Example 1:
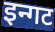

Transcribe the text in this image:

इन्गट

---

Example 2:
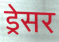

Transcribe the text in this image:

ड्रेसर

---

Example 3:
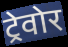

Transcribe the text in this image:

ट्रेवोर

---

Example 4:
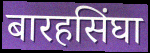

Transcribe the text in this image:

बारहसिंघा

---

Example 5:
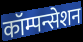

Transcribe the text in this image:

कॉम्पन्सेशन